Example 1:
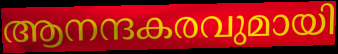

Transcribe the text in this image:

ആനന്ദകരവുമായി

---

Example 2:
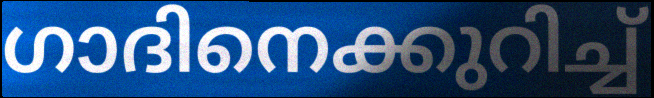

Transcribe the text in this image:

ഗാദിനെക്കുറിച്ച്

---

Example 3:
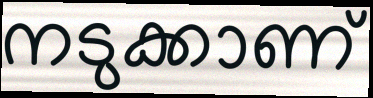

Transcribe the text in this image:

നടുക്കാണ്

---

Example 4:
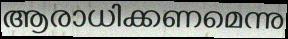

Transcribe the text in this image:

ആരാധിക്കണമെന്നു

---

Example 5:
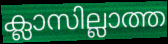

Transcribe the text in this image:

ക്ലാസില്ലാത്ത